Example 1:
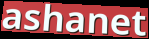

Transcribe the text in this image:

ashanet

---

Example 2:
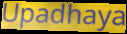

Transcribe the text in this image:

Upadhaya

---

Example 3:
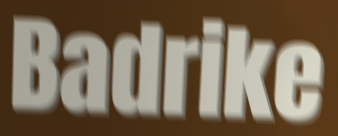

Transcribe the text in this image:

Badrike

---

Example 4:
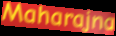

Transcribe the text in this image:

Maharajna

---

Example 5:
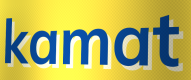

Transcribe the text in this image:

kamat